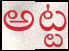
అట్ట